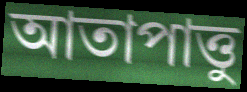
আতাপাত্তু